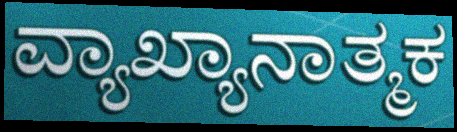
ವ್ಯಾಖ್ಯಾನಾತ್ಮಕ